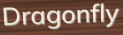
Dragonfly